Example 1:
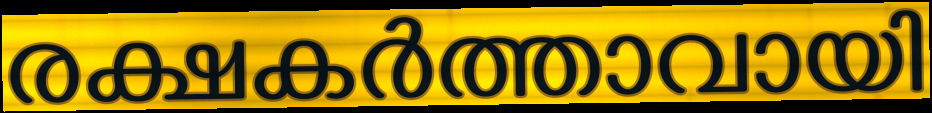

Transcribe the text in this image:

രക്ഷകർത്താവായി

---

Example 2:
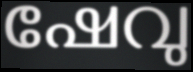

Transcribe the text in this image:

ഷേവു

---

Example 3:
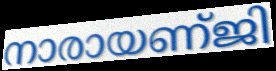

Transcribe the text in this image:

നാരായണ്ജി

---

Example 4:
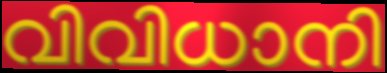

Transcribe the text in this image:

വിവിധാനി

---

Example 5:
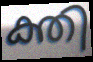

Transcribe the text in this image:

ക്തി